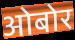
ओबोर